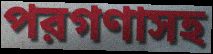
পরগণাসহ